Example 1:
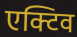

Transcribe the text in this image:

एक्टिव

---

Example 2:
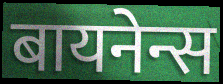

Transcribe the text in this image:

बायनेन्स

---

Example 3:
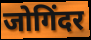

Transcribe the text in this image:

जोगिंदर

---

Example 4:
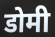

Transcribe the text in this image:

डोमी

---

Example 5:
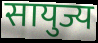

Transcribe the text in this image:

सायुज्य